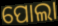
ପୋଲା